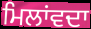
ਮਿਲਾਂਵਦਾ